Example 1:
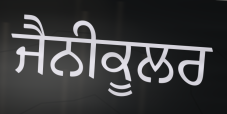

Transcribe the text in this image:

ਜੈਨੀਕੂਲਰ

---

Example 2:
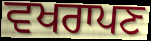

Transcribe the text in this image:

ਵਖਰਾਪਣ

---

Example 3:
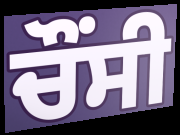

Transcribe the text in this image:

ਚੌਂਸੀ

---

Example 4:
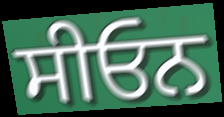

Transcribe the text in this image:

ਸੀਓਨ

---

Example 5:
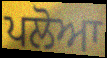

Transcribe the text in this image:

ਪਲੋਆ